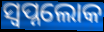
ସ୍ଵପ୍ନଲୋକ